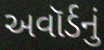
અવૉર્ડનું